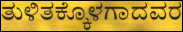
ತುಳಿತಕ್ಕೊಳಗಾದವರ